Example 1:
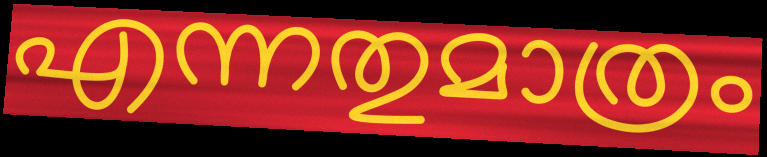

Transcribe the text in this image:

എന്നതുമാത്രം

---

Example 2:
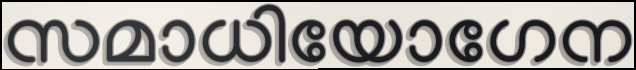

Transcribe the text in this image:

സമാധിയോഗേന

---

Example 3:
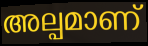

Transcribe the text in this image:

അല്പമാണ്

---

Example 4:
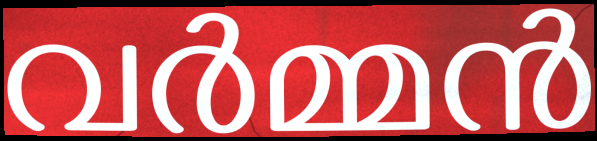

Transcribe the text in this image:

വർമ്മൻ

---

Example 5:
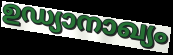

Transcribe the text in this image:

ഉഡ്യാനാഖ്യം